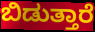
ಬಿಡುತ್ತಾರೆ